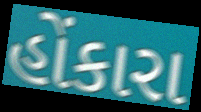
હોંકારા